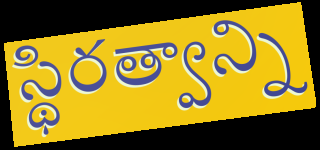
స్థిరత్వాన్ని